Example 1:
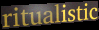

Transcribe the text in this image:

ritualistic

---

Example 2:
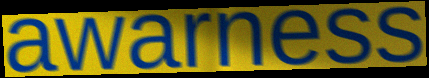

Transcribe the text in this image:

awarness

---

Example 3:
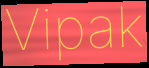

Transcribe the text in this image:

Vipak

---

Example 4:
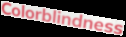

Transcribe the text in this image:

Colorblindness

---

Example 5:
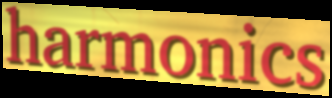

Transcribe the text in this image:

harmonics